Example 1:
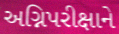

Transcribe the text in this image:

અગ્નિપરીક્ષાને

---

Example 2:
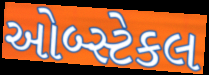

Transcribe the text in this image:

ઓબ્સ્ટેકલ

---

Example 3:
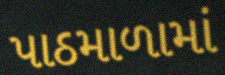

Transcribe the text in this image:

પાઠમાળામાં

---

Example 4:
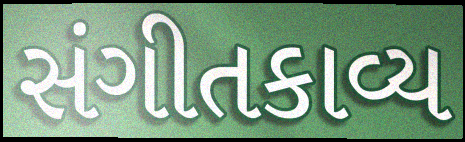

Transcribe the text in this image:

સંગીતકાવ્ય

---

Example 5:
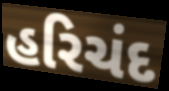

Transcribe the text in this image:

હરિચંદ